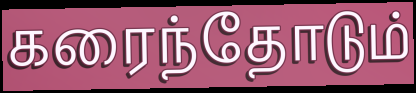
கரைந்தோடும்